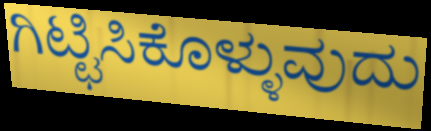
ಗಿಟ್ಟಿಸಿಕೊಳ್ಳುವುದು